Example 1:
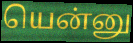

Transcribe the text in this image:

யென்னு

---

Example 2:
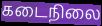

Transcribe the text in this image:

கடைநிலை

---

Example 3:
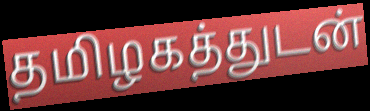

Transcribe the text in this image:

தமிழகத்துடன்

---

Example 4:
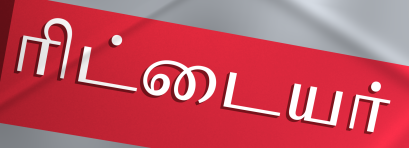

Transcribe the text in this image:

ரிட்டையர்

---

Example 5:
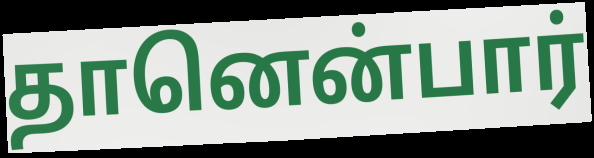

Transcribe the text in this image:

தானென்பார்